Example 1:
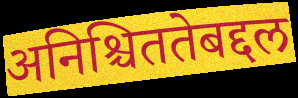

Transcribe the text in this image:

अनिश्चिततेबद्दल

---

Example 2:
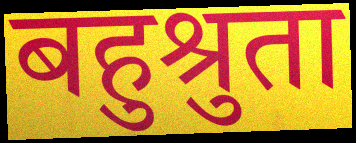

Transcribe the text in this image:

बहुश्रुता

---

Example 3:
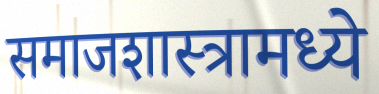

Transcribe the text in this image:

समाजशास्त्रामध्ये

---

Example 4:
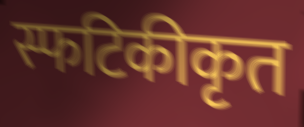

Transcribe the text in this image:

स्फटिकीकृत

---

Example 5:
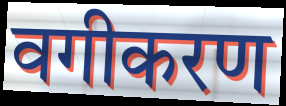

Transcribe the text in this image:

वगीकरण